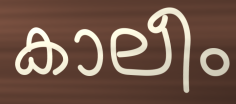
കാലീം